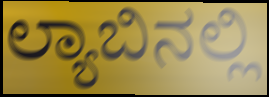
ಲ್ಯಾಬಿನಲ್ಲಿ